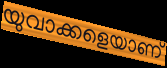
യുവാക്കളെയാണ്